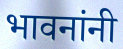
भावनांनी